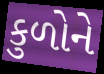
કુળોને